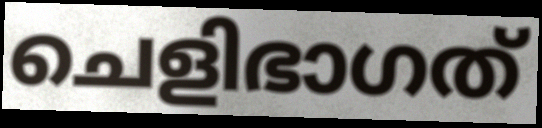
ചെളിഭാഗത്